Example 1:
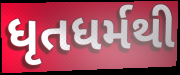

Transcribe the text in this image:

ધૃતધર્મથી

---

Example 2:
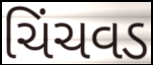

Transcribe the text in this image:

ચિંચવડ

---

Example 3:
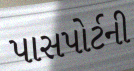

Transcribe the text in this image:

પાસપોર્ટની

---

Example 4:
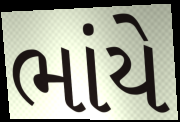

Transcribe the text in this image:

ભાંયે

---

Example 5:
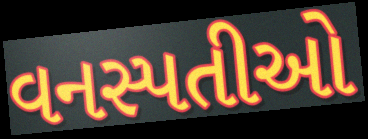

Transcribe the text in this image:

વનસ્પતીઓ